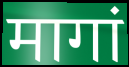
मागां